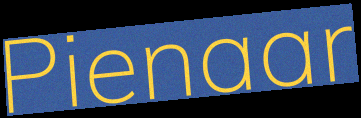
Pienaar